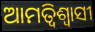
ଆମତ୍ବିଶ୍ୱାସୀ